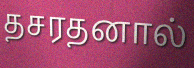
தசரதனால்